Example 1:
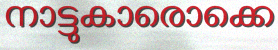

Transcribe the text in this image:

നാട്ടുകാരൊക്കെ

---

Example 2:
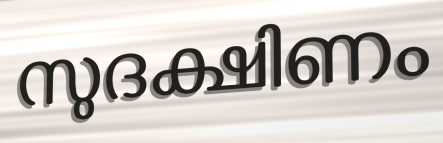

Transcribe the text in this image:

സുദക്ഷിണം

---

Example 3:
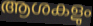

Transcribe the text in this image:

ആശകളും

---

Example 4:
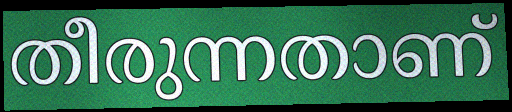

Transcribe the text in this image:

തീരുന്നതാണ്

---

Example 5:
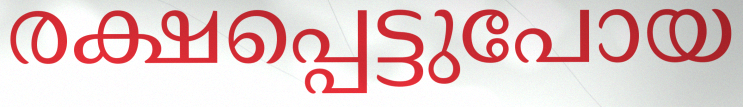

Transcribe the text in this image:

രക്ഷപ്പെട്ടുപോയ